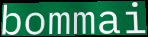
bommai